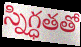
స్నిగ్ధతతో